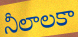
నీలాలకా